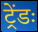
ट्रेंडः